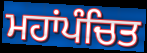
ਮਹਾਂਪੰਚਿਤ